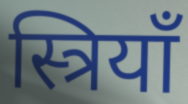
स्त्रियाँ